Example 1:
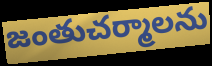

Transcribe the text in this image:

జంతుచర్మాలను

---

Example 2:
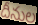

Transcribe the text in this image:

దీనుల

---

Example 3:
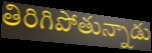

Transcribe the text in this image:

తిరిగిపోతున్నాడు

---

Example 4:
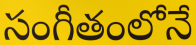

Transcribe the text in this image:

సంగీతంలోనే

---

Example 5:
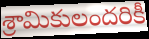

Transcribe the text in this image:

శ్రామికులందరికీ